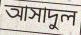
আসাদুল